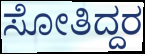
ಸೋತಿದ್ದರ